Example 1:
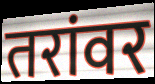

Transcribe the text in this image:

तरांवर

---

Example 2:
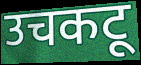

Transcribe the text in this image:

उचकटू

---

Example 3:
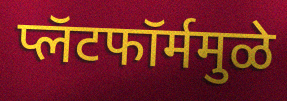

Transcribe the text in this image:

प्लॅटफॉर्ममुळे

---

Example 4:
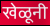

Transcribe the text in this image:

खेळूनी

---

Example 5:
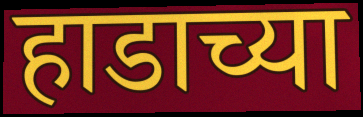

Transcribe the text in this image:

हाडाच्या